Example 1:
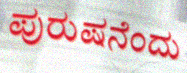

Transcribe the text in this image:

ಪುರುಷನೆಂದು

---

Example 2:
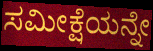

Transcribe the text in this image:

ಸಮೀಕ್ಷೆಯನ್ನೇ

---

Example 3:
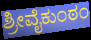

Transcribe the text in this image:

ಶ್ರೀವೈಕುಂಠಂ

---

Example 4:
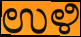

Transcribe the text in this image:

ಉಳಿ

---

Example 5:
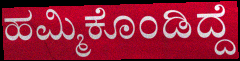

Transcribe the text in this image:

ಹಮ್ಮಿಕೊಂಡಿದ್ದೆ